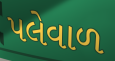
પલેવાળ